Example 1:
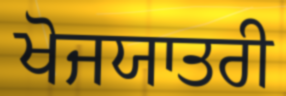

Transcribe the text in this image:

ਖੋਜਯਾਤਰੀ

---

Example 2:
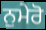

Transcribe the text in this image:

ਨੁਮੇਰੋ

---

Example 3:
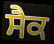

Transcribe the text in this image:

ਸੈਕ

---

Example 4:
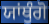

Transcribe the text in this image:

ਯਾਂਥੁੰਗੋ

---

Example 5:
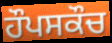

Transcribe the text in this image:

ਹੌਪਸਕੌਚ